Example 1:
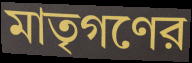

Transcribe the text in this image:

মাতৃগণের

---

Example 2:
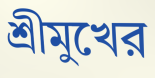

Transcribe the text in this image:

শ্রীমুখের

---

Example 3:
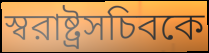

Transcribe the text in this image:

স্বরাষ্ট্রসচিবকে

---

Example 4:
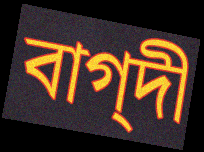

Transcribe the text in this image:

বাগ্‌দী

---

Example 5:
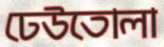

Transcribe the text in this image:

ঢেউতোলা